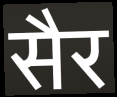
सैर